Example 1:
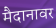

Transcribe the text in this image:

मैदानावर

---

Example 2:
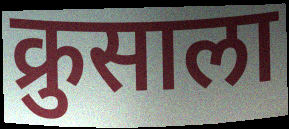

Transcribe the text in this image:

क्रुसाला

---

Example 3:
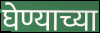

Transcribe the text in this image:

घेण्याच्या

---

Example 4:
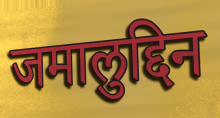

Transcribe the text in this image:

जमालुद्दिन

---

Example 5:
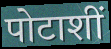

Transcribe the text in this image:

पोटाशीं